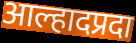
आल्हादप्रदा